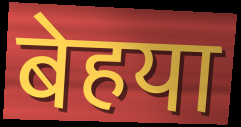
बेहया